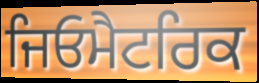
ਜਿਓਮੈਟਰਿਕ